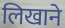
लिखाने